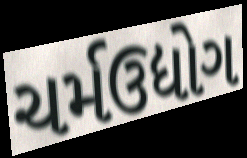
ચર્મઉદ્યોગ